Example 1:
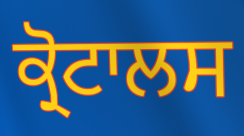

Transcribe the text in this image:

ਕ੍ਰੋਟਾਲਸ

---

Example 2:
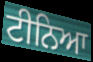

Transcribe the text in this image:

ਟੀਨਿਆ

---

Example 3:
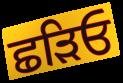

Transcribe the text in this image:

ਛੜਿਓ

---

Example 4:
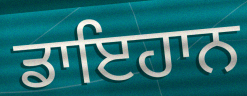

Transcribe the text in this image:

ਡਾਇਹਾਨ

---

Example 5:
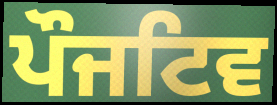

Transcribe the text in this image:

ਪੌਜਟਿਵ